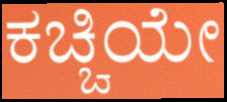
ಕಚ್ಚಿಯೇ